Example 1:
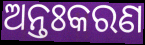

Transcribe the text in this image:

ଅନ୍ତଃକରଣ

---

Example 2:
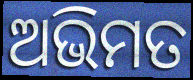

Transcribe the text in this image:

ଅଭିମତ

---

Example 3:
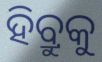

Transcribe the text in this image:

ହିବ୍ରୁକୁ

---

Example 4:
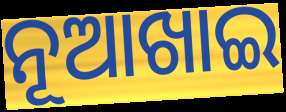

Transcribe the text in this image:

ନୂଆଖାଇ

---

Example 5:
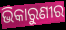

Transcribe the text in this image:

ଭିକାରୁଣୀର